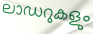
ലാഡറുകളും